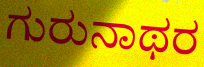
ಗುರುನಾಥರ